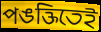
পঙক্তিতেই